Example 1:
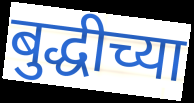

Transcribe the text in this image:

बुद्धीच्या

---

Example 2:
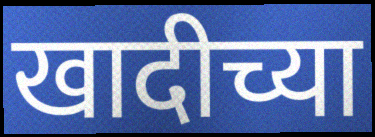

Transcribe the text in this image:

खादीच्या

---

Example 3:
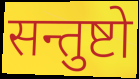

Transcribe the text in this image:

सन्तुष्टो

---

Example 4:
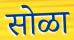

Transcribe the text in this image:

सोळा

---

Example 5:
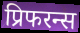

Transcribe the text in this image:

प्रिफरन्स